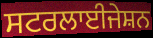
ਸਟਰਲਾਈਜੇਸ਼ਨ